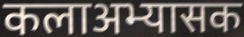
कलाअभ्यासक